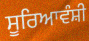
ਸੂਰਿਆਵੰਸ਼ੀ